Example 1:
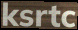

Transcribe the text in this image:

ksrtc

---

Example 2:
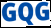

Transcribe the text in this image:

GQG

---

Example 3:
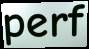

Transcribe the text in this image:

perf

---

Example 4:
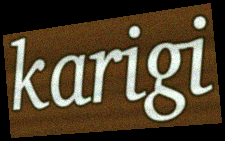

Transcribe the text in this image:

karigi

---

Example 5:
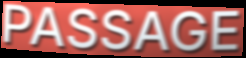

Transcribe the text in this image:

PASSAGE